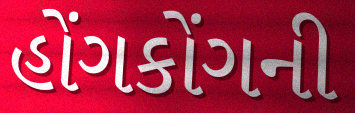
હોંગકોંગની